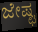
ಜೇಷ್ಟ